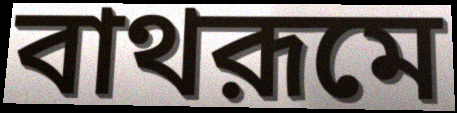
বাথরূমে